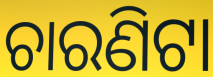
ଚାରଣିଟା